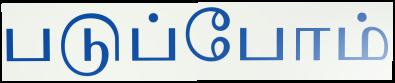
படுப்போம்